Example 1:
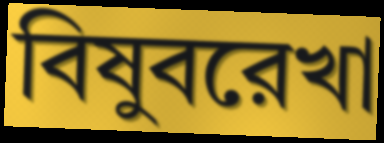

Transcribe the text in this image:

বিষুবরেখা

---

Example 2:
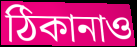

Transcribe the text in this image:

ঠিকানাও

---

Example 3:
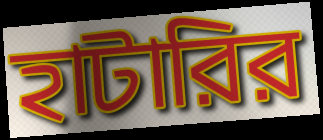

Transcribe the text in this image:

হাটারির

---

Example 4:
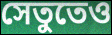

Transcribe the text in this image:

সেতুতেও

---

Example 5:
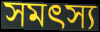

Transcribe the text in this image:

সমৎস্য